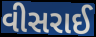
વીસરાઈ